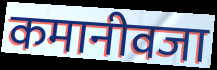
कमानीवजा